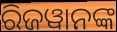
ରିଜୱାନଙ୍କ